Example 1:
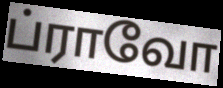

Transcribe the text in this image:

ப்ராவோ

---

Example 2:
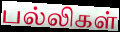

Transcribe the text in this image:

பல்லிகள்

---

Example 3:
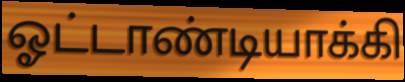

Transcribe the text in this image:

ஓட்டாண்டியாக்கி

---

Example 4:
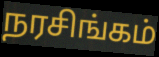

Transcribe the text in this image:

நரசிங்கம்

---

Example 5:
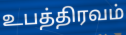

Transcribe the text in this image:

உபத்திரவம்